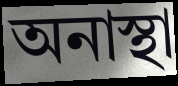
অনাস্থা